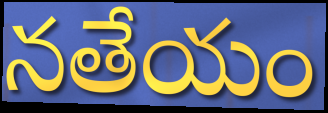
నతేయం